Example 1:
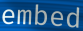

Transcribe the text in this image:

embed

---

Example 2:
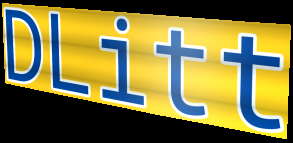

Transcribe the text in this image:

DLitt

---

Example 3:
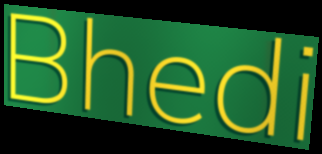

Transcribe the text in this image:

Bhedi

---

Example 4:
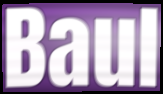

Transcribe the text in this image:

Baul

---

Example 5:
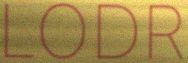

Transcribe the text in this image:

LODR